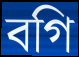
বগি